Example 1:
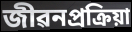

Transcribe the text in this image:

জীৱনপ্ৰক্ৰিয়া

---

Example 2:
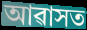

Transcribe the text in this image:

আৱাসত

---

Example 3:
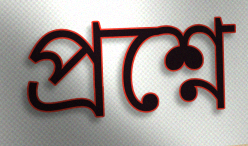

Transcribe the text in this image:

প্ৰশ্নে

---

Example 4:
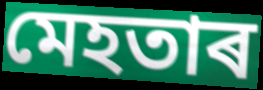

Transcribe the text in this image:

মেহতাৰ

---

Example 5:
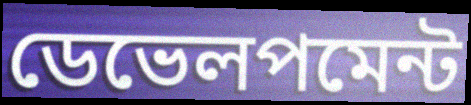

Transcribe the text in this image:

ডেভেলপমেন্ট